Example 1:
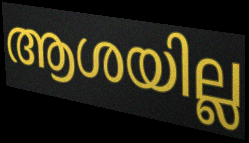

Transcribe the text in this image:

ആശയില്ല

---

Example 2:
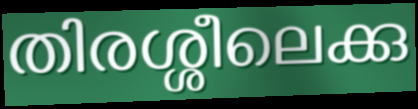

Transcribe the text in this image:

തിരശ്ശീലെക്കു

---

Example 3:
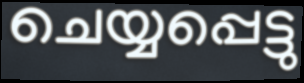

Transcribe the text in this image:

ചെയ്യപ്പെട്ടു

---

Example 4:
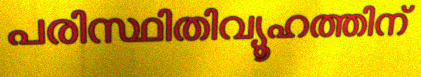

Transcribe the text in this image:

പരിസ്ഥിതിവ്യൂഹത്തിന്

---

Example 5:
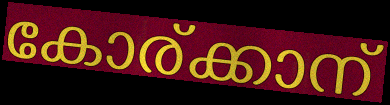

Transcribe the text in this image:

കോര്ക്കാന്